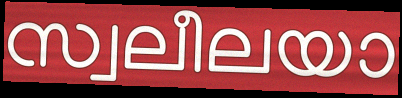
സ്വലീലയാ